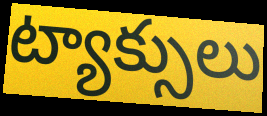
ట్యాక్సులు